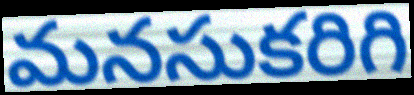
మనసుకరిగి